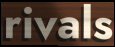
rivals